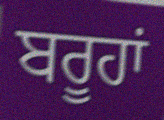
ਬਰੂਹਾਂ